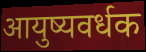
आयुष्यवर्धक